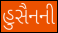
હુસૈનની